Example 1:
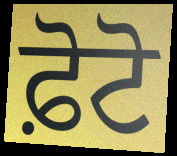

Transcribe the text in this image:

ਫ਼ੋਟੋ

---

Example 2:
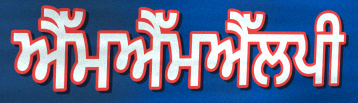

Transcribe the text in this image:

ਐੱਮਐੱਮਐੱਲਪੀ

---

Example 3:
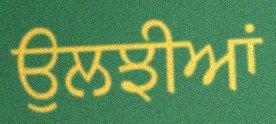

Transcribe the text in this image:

ਉਲਝੀਆਂ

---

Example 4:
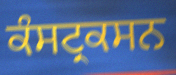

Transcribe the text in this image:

ਕੰਸਟ੍ਰਕਸਨ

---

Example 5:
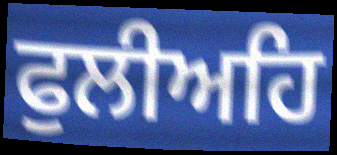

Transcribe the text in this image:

ਫੁਲੀਅਹਿ